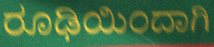
ರೂಢಿಯಿಂದಾಗಿ